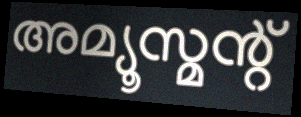
അമ്യൂസ്മന്റ്